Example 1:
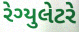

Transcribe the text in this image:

રેગ્યુલેટરે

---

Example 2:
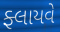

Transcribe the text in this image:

ફ્લાયવે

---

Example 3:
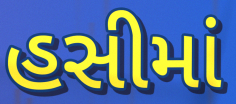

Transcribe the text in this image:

હસીમાં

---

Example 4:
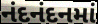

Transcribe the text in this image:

નંદનંદનમાં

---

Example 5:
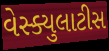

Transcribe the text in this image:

વેસ્ક્યુલાટીસ